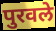
पुरवले